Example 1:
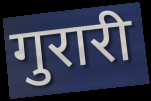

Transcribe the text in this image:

गुरारी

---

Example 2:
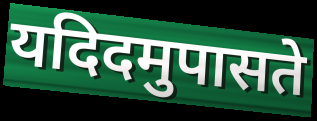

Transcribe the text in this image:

यदिदमुपासते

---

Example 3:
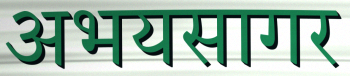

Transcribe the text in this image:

अभयसागर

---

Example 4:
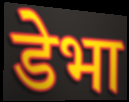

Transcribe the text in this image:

डेभा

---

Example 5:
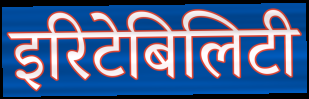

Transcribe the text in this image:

इरिटेबिलिटी